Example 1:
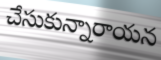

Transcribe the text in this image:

చేసుకున్నారాయన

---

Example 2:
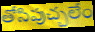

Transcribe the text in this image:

తోసిపుచ్చలేం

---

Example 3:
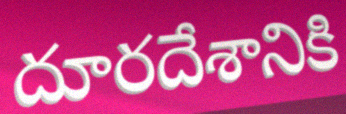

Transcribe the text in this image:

దూరదేశానికి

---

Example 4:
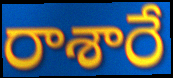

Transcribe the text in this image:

రాశారే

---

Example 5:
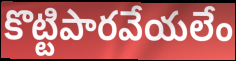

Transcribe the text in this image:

కొట్టిపారవేయలేం